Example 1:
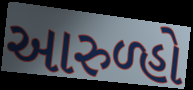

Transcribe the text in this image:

આરુળ્હો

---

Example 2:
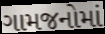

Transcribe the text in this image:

ગામજનોમાં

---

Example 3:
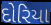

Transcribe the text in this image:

દોરિયા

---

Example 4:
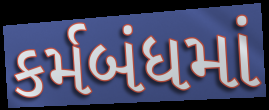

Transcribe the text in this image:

કર્મબંધમાં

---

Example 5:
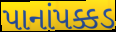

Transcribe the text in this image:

પાનાંપક્કડ